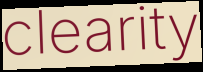
clearity